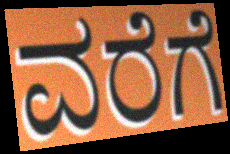
ವರೆಗೆ